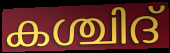
കശ്ചിദ്